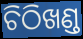
ଚିଠିଖଣ୍ଡ